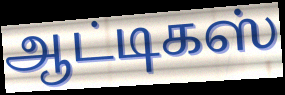
ஆட்டிகஸ்